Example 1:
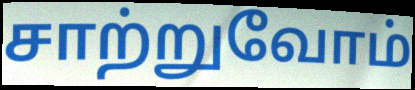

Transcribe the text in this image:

சாற்றுவோம்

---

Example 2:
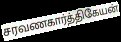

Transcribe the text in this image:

சரவணகார்த்திகேயன்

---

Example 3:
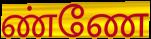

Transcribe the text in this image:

ண்ணே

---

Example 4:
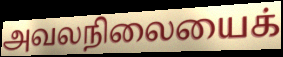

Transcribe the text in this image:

அவலநிலையைக்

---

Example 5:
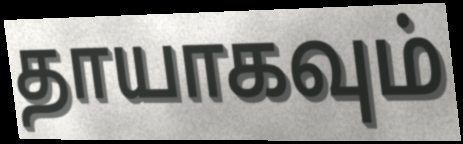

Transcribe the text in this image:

தாயாகவும்